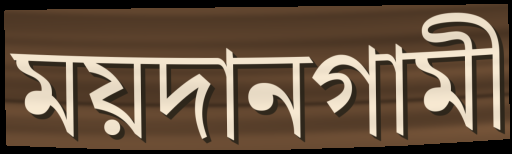
ময়দানগামী